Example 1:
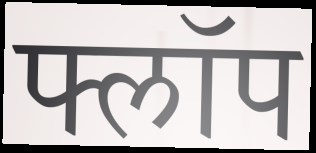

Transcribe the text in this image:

फ्लॉप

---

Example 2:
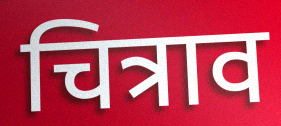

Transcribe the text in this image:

चित्राव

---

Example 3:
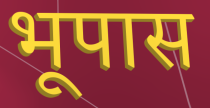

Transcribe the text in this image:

भूपास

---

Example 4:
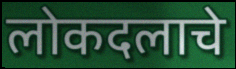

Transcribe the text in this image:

लोकदलाचे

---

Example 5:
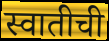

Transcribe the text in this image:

स्वातीची